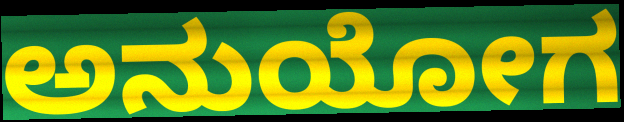
ಅನುಯೋಗ